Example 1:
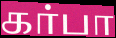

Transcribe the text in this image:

கர்பா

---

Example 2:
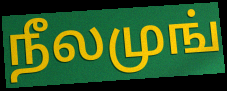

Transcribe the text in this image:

நீலமுங்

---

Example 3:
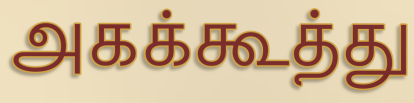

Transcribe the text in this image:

அகக்கூத்து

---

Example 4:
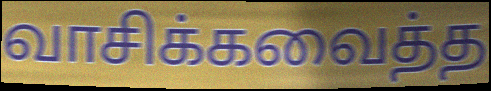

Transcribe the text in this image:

வாசிக்கவைத்த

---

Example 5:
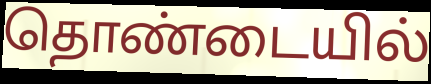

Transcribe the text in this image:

தொண்டையில்